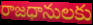
రాజధానులకు